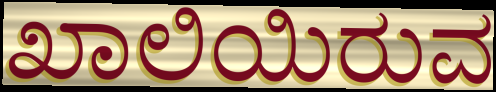
ಖಾಲಿಯಿರುವ